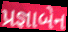
પ્રજ્ઞાબેન